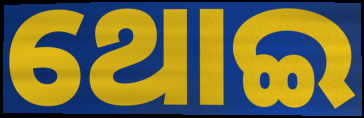
ଥୋଇ